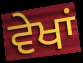
ਵੇਖਾਂ